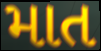
માત